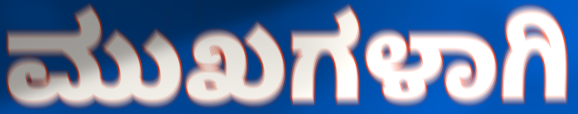
ಮುಖಗಳಾಗಿ